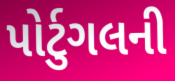
પોર્ટુગલની